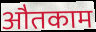
औतकाम